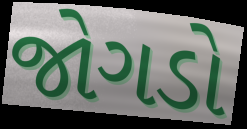
જોગડો